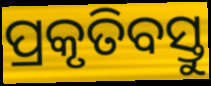
ପ୍ରକୃତିବସ୍ତୁ